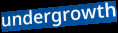
undergrowth